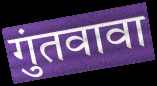
गुंतवावा